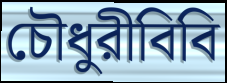
চৌধুরীবিবি